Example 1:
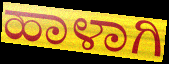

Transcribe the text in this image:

ಹಾಳಾಗಿ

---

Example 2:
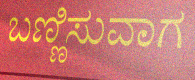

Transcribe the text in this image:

ಬಣ್ಣಿಸುವಾಗ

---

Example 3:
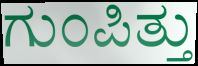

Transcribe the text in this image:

ಗುಂಪಿತ್ತು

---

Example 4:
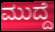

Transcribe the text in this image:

ಮುದ್ದೆ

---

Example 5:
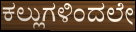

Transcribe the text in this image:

ಕಲ್ಲುಗಳಿಂದಲೇ